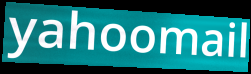
yahoomail